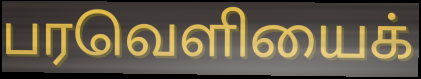
பரவெளியைக்